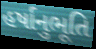
હર્ષાનુભૂતિ